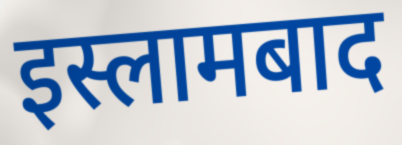
इस्लामबाद